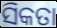
ସିକତା